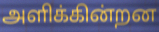
அளிக்கின்றன